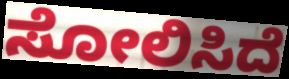
ಸೋಲಿಸಿದೆ